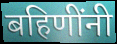
बहिणींनी